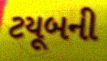
ટયૂબની